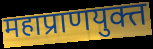
महाप्राणयुक्त